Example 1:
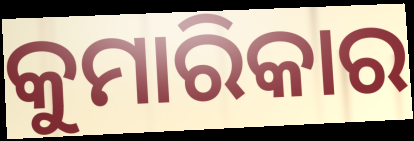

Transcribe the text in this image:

କୁମାରିକାର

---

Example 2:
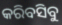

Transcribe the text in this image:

କରିବସିବୁ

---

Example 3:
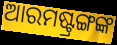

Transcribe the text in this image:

ଆରମଷ୍ଟ୍ରଙ୍ଗଙ୍କ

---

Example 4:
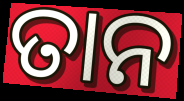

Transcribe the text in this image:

ତାନ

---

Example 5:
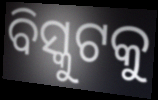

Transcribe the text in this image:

ବିସ୍କୁଟକୁ